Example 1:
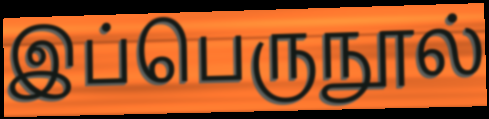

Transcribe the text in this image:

இப்பெருநூல்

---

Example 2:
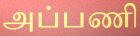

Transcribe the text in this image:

அப்பணி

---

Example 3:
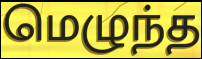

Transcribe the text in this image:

மெழுந்த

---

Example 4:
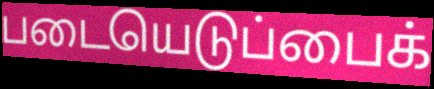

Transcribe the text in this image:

படையெடுப்பைக்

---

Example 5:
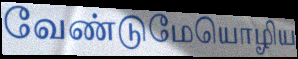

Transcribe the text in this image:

வேண்டுமேயொழிய